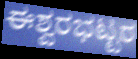
ಈಶ್ವರಭಟ್ಟರ